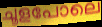
ചൂളപോലെ